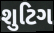
શુટિગ